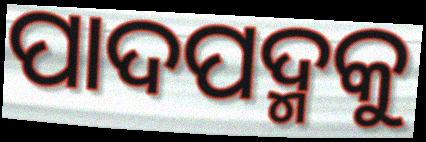
ପାଦପଦ୍ମକୁ